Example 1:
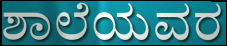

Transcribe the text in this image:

ಶಾಲೆಯವರ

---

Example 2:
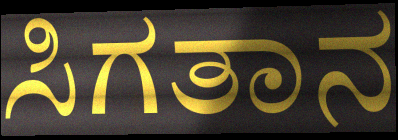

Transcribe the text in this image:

ಸಿಗತಾನ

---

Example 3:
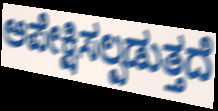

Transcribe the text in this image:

ಅಪೇಕ್ಷಿಸಲ್ಪಡುತ್ತದೆ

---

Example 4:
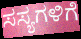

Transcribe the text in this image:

ಸಸ್ಯಗಳಿಗೆ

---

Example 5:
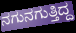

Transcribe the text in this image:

ನಗುನಗುತ್ತಿದ್ದ